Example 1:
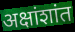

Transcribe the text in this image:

अक्षांशांत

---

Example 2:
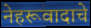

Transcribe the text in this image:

नेहरूवादाचे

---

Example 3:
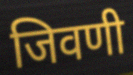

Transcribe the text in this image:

जिवणी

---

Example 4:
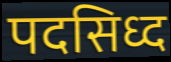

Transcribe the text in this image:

पदसिध्द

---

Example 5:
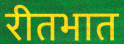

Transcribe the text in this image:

रीतभात